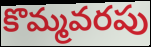
కొమ్మవరపు